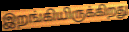
இறங்கியிருக்கிறது